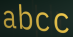
abcc